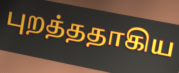
புறத்ததாகிய